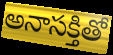
అనాసక్తితో